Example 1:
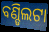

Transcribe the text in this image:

ବଣ୍ଡିଲଟା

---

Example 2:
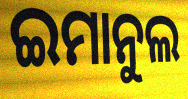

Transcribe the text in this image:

ଇମାନୁଲ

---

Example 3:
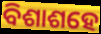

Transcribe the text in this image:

ବିଶାଶହେ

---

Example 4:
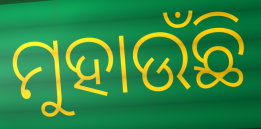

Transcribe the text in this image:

ମୁହାଉଁଛି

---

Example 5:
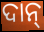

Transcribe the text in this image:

ଦାନ୍